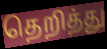
தெறித்து